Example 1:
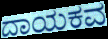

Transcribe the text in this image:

ದಾಯಕವ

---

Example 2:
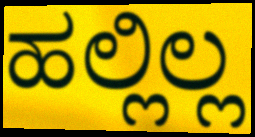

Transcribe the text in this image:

ಹಲ್ಲಿಲ್ಲ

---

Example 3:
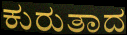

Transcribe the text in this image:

ಕುರುತಾದ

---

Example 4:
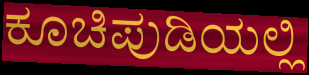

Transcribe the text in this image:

ಕೂಚಿಪುಡಿಯಲ್ಲಿ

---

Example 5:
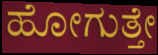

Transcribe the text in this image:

ಹೋಗುತ್ತೇ